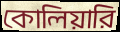
কোলিয়ারি